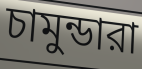
চামুন্ডারা